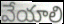
వేయాలి